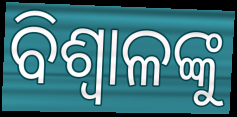
ବିଶ୍ୱାଳଙ୍କୁ